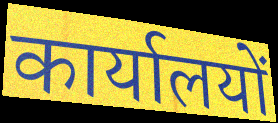
कार्यालयों